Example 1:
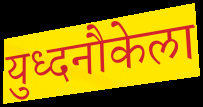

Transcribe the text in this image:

युध्दनौकेला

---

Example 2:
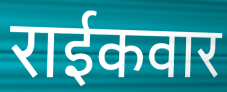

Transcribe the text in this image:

राईकवार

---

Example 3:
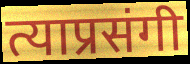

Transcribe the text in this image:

त्याप्रसंगी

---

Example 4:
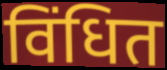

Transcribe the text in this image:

विंधित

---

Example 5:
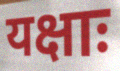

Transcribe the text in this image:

यक्षाः